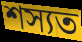
শস্যত